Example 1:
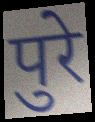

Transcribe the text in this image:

पुरे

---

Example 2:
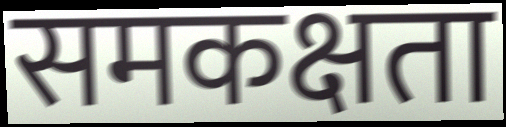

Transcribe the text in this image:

समकक्षता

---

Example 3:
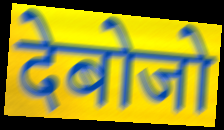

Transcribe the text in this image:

देबोजो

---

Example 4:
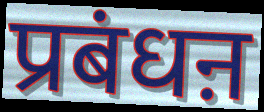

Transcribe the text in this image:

प्रबंधऩ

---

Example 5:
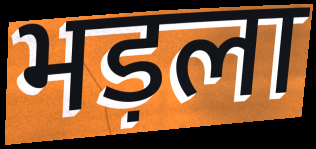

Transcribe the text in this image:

भड़ला